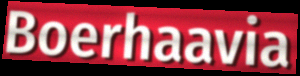
Boerhaavia